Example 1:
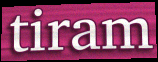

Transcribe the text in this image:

tiram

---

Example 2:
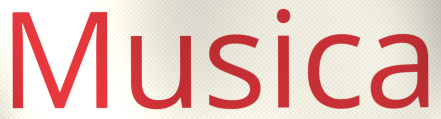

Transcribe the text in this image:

Musica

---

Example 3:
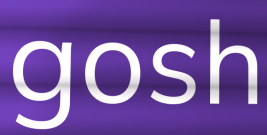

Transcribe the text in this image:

gosh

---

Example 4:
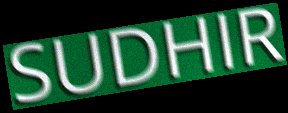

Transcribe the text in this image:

SUDHIR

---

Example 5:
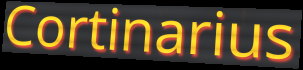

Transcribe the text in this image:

Cortinarius